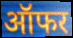
ऑफर